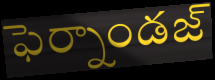
ఫెర్నాండజ్